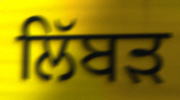
ਲਿੱਬੜ